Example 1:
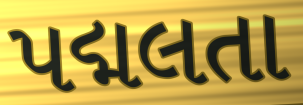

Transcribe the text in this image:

પદ્મલતા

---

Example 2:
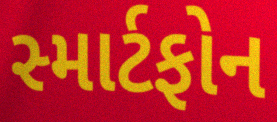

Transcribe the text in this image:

સ્માર્ટફોન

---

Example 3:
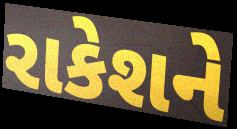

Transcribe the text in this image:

રાકેશને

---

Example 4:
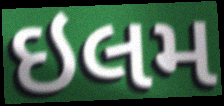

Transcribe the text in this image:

ઇલમ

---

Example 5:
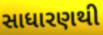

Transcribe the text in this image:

સાધારણથી